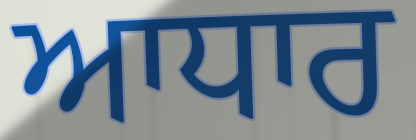
ਆਧਾਰ